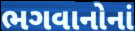
ભગવાનોનાં